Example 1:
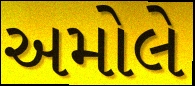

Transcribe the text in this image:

અમોલે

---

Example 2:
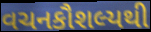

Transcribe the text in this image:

વચનકૌશલ્યથી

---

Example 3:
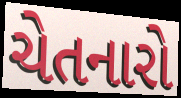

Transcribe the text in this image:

ચેતનારો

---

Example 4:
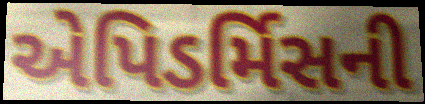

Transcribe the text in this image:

એપિડર્મિસની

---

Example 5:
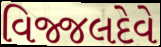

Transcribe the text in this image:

વિજ્જલદેવે